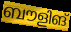
ബൗളിങ്